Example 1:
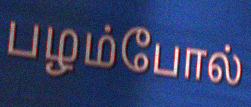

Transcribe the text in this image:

பழம்போல்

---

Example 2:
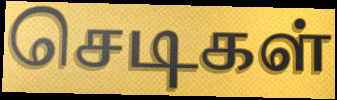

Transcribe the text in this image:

செடிகள்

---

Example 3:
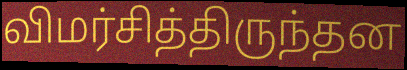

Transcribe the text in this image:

விமர்சித்திருந்தன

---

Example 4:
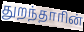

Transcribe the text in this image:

துறந்தாரின்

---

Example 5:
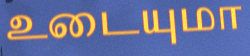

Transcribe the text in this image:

உடையுமா